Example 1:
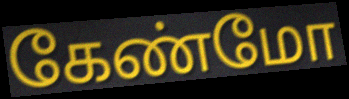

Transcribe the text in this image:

கேண்மோ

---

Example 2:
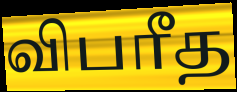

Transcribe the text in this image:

விபரீத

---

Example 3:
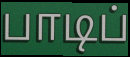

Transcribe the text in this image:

பாடிப்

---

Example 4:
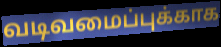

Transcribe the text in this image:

வடிவமைப்புக்காக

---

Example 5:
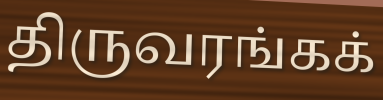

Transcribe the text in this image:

திருவரங்கக்